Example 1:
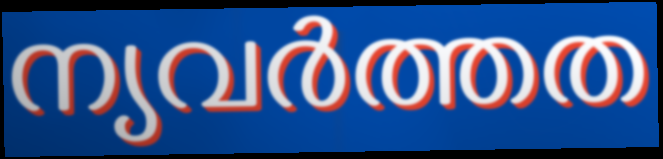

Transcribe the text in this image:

ന്യവർത്തത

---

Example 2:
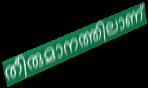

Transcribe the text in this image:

തീരുമാനത്തിലാണ്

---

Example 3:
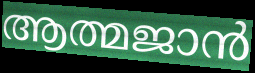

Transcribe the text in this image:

ആത്മജാൻ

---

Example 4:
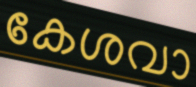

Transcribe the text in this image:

കേശവാ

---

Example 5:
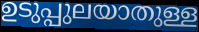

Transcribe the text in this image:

ഉടുപ്പുലയാതുള്ള